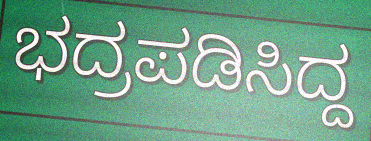
ಭದ್ರಪಡಿಸಿದ್ದ